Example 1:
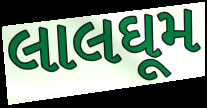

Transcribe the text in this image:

લાલઘૂમ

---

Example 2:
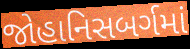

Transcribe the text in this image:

જોહાનિસબર્ગમાં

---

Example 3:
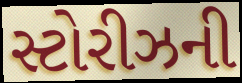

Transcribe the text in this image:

સ્ટોરીઝની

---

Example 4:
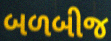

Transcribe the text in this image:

બળબીજ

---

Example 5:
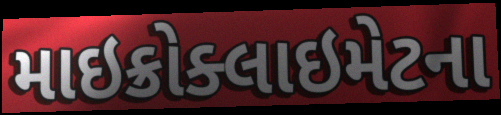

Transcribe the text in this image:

માઇક્રોક્લાઇમેટના